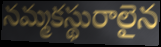
నమ్మకస్థురాలైన